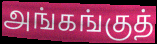
அங்கங்குத்